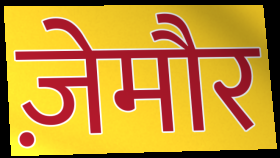
ज़ेमौर